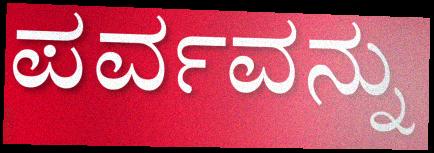
ಪರ್ವವನ್ನು